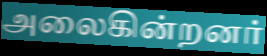
அலைகின்றனர்